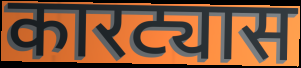
कारट्यास